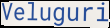
Veluguri